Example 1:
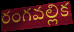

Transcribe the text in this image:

రంగవల్లిక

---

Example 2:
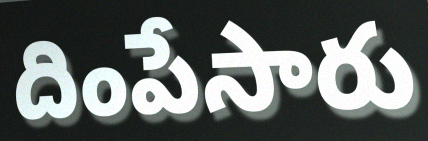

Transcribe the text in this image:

దింపేసారు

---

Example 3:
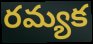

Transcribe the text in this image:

రమ్యక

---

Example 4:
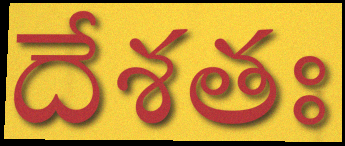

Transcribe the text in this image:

దేశతః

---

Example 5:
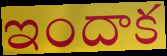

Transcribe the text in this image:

ఇందాక